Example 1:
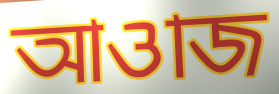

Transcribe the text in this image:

আওাজ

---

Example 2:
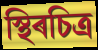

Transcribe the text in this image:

স্থিৰচিত্ৰ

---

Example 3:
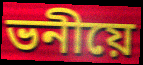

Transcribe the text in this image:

ভনীয়ে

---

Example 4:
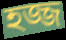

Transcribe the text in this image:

হজ্জ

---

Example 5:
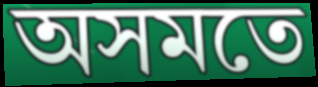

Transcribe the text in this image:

অসমতে